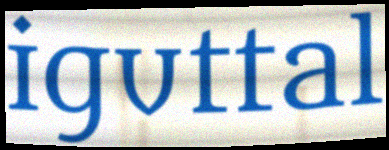
iguttal